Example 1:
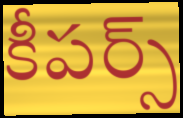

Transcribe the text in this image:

కీపర్స్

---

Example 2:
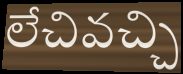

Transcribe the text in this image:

లేచివచ్చి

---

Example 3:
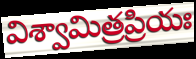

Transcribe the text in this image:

విశ్వామిత్రప్రియః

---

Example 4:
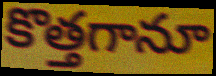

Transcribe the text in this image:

కొత్తగానూ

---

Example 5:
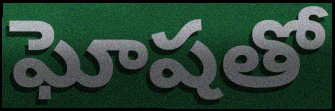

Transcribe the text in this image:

ఘోషతో